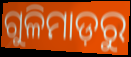
ଗୁଳିମାଡ଼ରୁ